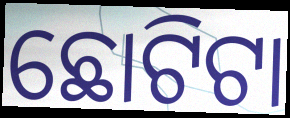
ଛୋଟିଟା